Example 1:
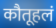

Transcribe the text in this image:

कौतूहलं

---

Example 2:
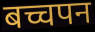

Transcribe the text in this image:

बच्चपन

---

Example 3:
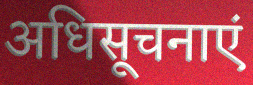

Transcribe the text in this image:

अधिसूचनाएं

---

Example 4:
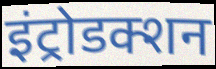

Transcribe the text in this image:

इंट्रोडक्शन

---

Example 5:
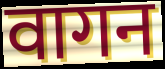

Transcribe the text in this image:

वागन